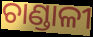
ଚାଣ୍ଡାଳୀ